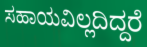
ಸಹಾಯವಿಲ್ಲದಿದ್ದರೆ